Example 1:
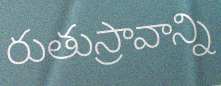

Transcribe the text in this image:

రుతుస్రావాన్ని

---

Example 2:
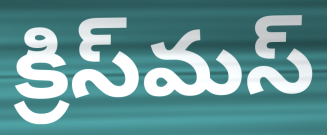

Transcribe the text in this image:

క్రిస్‌మస్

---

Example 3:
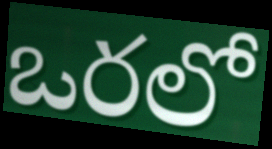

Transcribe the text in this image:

ఒరలో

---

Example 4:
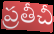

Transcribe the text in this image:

ప్రతీచీ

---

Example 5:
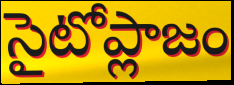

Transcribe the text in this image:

సైటోప్లాజం